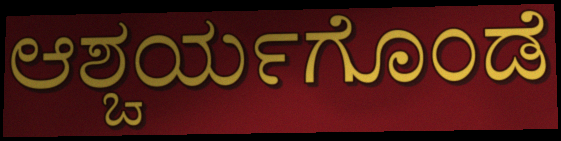
ಆಶ್ಚರ್ಯಗೊಂಡೆ